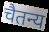
चैतन्य